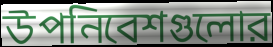
উপনিবেশগুলোর